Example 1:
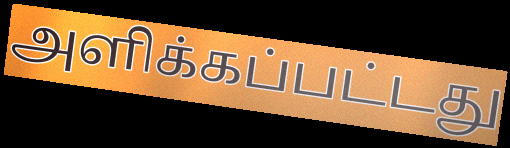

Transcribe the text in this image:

அளிக்கப்பட்டது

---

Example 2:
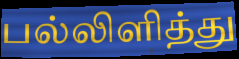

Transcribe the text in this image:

பல்லிளித்து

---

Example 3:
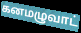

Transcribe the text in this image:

கனமழுவாட்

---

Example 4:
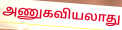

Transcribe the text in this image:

அணுகவியலாது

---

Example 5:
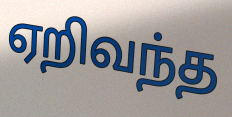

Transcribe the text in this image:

ஏறிவந்த